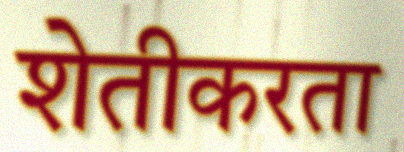
शेतीकरता